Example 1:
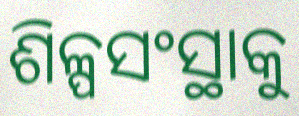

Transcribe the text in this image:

ଶିଳ୍ପସଂସ୍ଥାକୁ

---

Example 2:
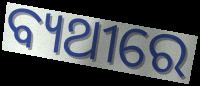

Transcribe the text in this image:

ବ୍ୟଥୀରେ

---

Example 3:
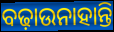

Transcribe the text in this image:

ବଢ଼ାଉନାହାନ୍ତି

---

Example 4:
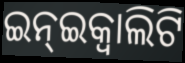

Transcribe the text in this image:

ଇନ୍ଇକ୍ଵାଲିଟି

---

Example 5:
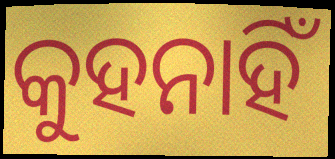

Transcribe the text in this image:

କୁହନାହିଁ